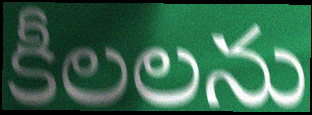
కీలలను